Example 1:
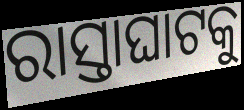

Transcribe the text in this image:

ରାସ୍ତାଘାଟକୁ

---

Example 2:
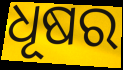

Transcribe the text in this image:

ଧୂଷର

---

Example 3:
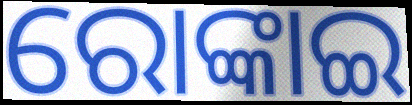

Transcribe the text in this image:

ରୋଙ୍କାଇ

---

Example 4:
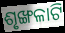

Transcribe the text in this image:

ଶୃଙ୍ଖଳାଟି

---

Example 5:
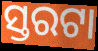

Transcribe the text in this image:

ସ୍ତରଟା